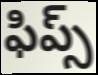
ఫిప్స్